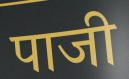
पाजी